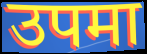
उपमा